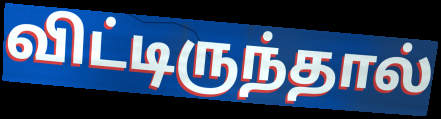
விட்டிருந்தால்